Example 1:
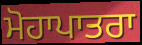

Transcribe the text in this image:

ਮੋਹਾਪਾਤਰਾ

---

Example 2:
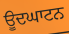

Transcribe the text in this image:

ਊਦਘਾਟਨ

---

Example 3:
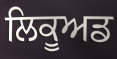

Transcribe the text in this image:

ਲਿਕੂਅਡ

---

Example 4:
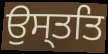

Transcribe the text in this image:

ਉਸ੍ਤਤਿ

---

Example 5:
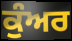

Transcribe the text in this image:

ਕੁੰਅਰ